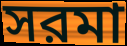
সরমা